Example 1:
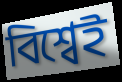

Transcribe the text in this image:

বিশ্বেই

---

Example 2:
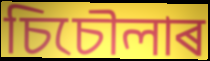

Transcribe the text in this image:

চিচৌলাৰ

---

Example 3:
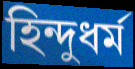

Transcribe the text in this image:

হিন্দুধৰ্ম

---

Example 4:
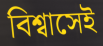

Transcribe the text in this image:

বিশ্বাসেই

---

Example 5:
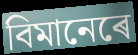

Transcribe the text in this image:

বিমানেৰে